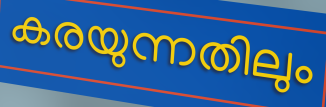
കരയുന്നതിലും